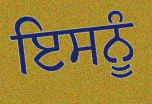
ਇਸਨੂੰ